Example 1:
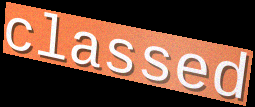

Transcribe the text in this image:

classed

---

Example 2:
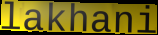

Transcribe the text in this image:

lakhani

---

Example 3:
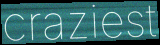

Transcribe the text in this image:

craziest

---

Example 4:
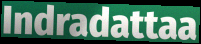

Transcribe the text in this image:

Indradattaa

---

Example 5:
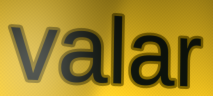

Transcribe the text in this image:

valar